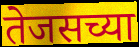
तेजसच्या